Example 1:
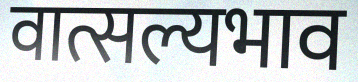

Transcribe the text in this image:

वात्सल्यभाव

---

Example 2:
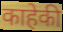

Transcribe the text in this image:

काहेकी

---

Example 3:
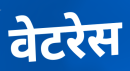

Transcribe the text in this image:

वेटरेस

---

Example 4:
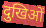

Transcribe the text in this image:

दुखिओं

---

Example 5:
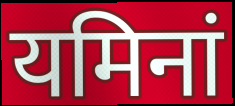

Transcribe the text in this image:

यमिनां